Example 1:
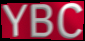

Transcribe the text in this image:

YBC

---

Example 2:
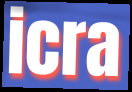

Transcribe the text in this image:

icra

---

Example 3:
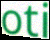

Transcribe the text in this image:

oti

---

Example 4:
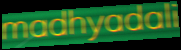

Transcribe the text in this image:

madhyadali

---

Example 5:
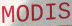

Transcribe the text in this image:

MODIS